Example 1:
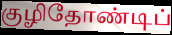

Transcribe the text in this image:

குழிதோண்டிப்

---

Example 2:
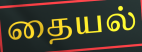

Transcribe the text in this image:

தையல்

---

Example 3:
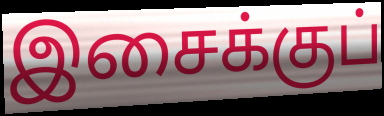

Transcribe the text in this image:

இசைக்குப்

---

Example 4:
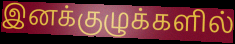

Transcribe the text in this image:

இனக்குழுக்களில்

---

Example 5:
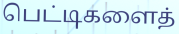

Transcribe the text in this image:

பெட்டிகளைத்